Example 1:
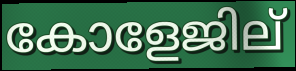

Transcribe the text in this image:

കോളേജില്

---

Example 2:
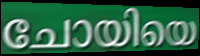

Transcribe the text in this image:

ചോയിയെ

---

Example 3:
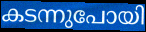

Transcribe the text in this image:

കടന്നുപോയി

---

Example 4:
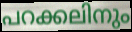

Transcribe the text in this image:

പറക്കലിനും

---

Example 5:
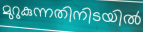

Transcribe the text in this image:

മുറുകുന്നതിനിടയിൽ